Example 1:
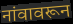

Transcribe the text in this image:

नांवावरून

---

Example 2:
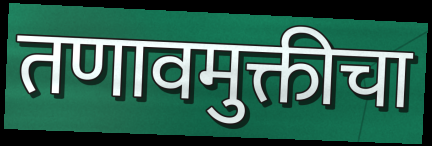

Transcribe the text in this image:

तणावमुक्तीचा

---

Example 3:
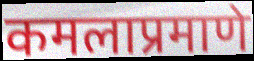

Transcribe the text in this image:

कमलाप्रमाणे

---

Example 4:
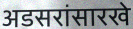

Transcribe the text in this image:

अडसरांसारखे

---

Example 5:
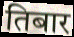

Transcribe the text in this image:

तिबार